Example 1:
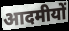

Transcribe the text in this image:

आदमीयों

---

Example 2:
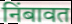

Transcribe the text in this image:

निंबावत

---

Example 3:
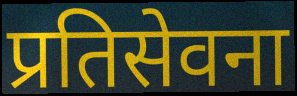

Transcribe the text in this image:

प्रतिसेवना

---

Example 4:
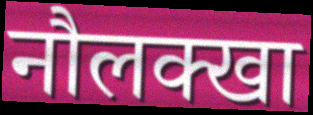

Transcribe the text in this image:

नौलक्खा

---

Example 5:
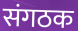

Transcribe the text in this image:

संगठक